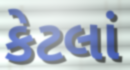
કેટલાં